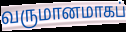
வருமானமாகப்